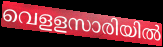
വെളളസാരിയിൽ